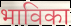
भाविका